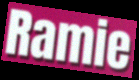
Ramie